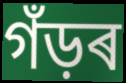
গঁড়ৰ